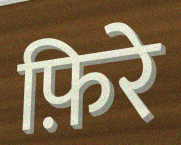
फ़िरे